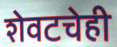
शेवटचेही